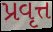
પ્રવૃત્ત